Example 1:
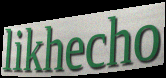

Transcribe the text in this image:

likhecho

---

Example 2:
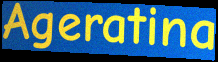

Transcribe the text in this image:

Ageratina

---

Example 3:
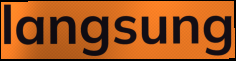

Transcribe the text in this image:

langsung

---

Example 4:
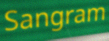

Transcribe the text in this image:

Sangram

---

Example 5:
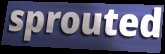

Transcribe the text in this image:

sprouted